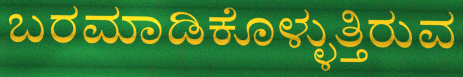
ಬರಮಾಡಿಕೊಳ್ಳುತ್ತಿರುವ